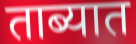
ताब्यात